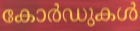
കോർഡുകൾ